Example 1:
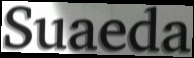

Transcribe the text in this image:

Suaeda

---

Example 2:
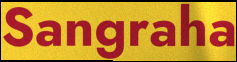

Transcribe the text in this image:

Sangraha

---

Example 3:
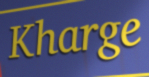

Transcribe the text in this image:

Kharge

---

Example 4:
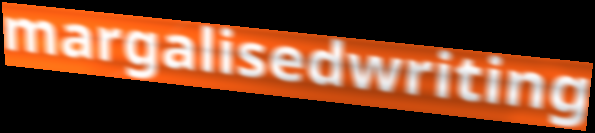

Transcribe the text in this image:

margalisedwriting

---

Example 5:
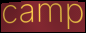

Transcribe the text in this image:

camp